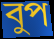
বুপ